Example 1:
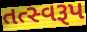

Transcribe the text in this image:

તત્સ્વરૂપ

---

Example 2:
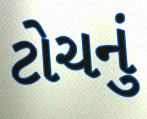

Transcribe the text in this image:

ટોચનું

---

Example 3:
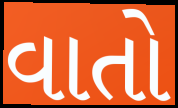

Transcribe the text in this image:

વાતો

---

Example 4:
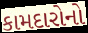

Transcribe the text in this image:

કામદારોનો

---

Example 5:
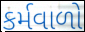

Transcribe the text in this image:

કર્મવાળો